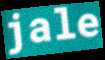
jale